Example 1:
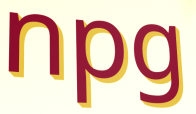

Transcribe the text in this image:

npg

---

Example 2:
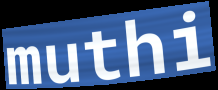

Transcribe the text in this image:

muthi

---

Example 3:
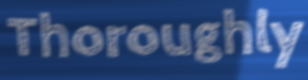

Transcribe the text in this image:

Thoroughly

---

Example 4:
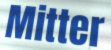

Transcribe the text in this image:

Mitter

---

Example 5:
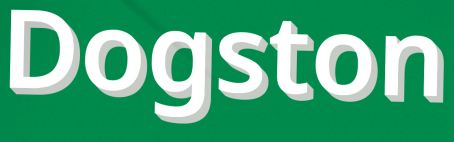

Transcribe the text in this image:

Dogston